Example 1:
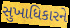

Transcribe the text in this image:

સુખાધિકારને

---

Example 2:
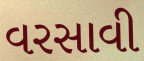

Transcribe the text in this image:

વરસાવી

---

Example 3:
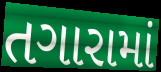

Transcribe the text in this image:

તગારામાં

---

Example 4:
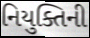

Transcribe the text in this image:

નિયુક્તિની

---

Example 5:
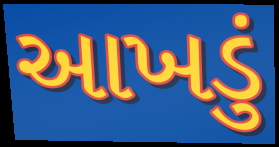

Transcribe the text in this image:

આખડું